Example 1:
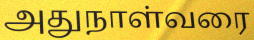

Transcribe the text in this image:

அதுநாள்வரை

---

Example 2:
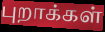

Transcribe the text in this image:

புறாக்கள்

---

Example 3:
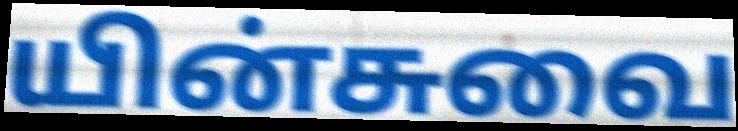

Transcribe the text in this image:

யின்சுவை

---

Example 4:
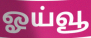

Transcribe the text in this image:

ஓய்வூ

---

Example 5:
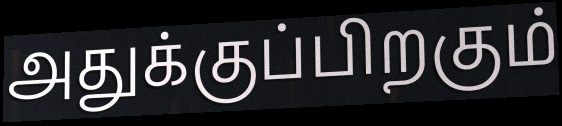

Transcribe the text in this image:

அதுக்குப்பிறகும்